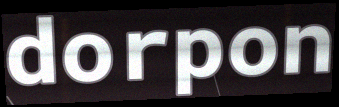
dorpon